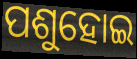
ପଶୁହୋଇ